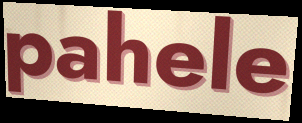
pahele